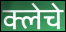
क्लेचे